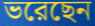
ভরেছেন